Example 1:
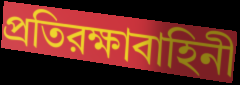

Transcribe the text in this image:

প্রতিরক্ষাবাহিনী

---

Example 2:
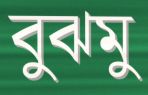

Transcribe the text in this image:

বুঝমু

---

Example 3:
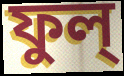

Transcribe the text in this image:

ফুল্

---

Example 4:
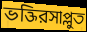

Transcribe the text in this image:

ভক্তিরসাপ্লুত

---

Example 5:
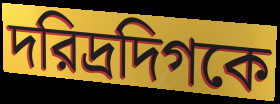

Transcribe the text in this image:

দরিদ্রদিগকে